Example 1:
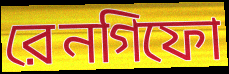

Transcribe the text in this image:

রেনগিফো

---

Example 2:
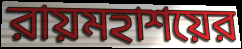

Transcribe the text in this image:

রায়মহাশয়ের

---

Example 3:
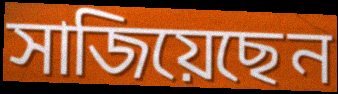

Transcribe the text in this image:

সাজিয়েছেন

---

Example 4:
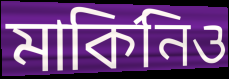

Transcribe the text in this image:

মার্কিনিও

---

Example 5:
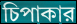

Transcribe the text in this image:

চিপাকার